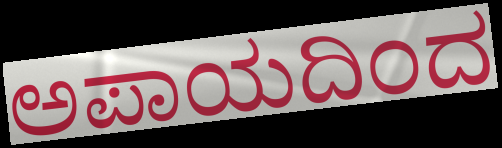
ಅಪಾಯದಿಂದ